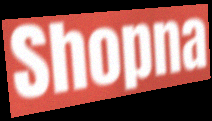
Shopna